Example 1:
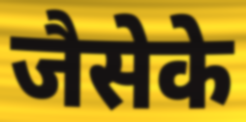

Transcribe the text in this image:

जैसेके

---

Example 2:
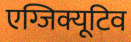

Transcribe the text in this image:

एग्जिक्यूटिव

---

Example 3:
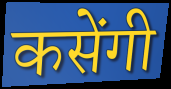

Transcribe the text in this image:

कसेंगी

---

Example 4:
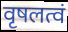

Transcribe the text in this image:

वृषलत्वं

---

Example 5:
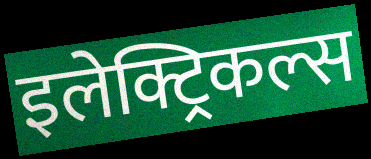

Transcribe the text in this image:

इलेक्ट्रिकल्स